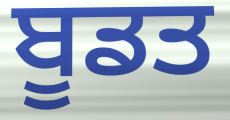
ਬੂਡਤ